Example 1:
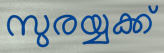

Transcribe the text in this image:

സുരയ്യക്ക്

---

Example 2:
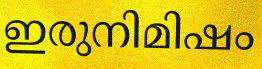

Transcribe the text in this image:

ഇരുനിമിഷം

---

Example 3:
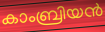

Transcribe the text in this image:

കാംബ്രിയൻ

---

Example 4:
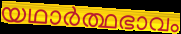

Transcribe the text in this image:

യഥാർത്ഥഭാവം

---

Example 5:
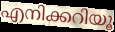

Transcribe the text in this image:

എനിക്കറിയൂ